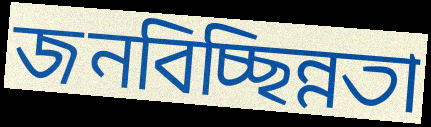
জনবিচ্ছিন্নতা